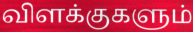
விளக்குகளும்